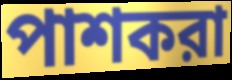
পাশকরা